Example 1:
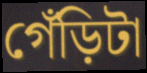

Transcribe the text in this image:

গেঁড়িটা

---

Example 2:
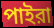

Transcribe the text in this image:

পাইরা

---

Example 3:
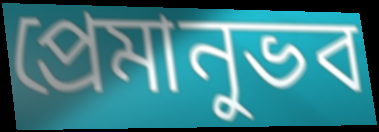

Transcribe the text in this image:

প্রেমানুভব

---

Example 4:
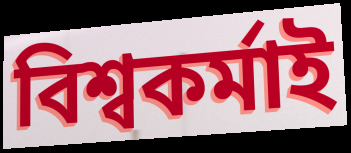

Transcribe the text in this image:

বিশ্বকর্মাই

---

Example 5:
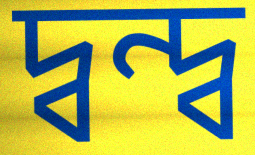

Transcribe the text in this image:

দ্বন্দ্ব